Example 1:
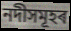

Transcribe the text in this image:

নদীসমূহৰ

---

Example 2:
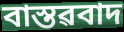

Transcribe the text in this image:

বাস্তৱবাদ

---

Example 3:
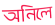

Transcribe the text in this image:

অনিলে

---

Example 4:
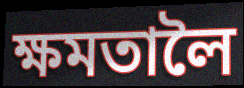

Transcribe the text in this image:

ক্ষমতালৈ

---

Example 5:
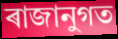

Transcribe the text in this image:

ৰাজানুগত